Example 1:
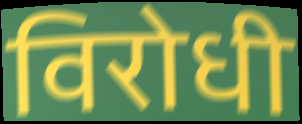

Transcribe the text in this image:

विरोधी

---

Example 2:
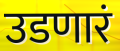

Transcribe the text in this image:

उडणारं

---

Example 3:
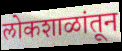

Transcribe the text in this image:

लोकशाळांतून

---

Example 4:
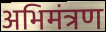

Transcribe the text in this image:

अभिमंत्रण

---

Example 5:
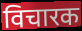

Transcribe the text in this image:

विचारक